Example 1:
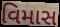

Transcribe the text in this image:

વિમાસ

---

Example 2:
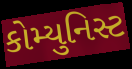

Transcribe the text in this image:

કોમ્યુનિસ્ટ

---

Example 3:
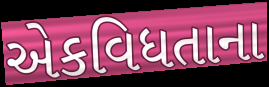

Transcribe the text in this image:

એકવિધતાના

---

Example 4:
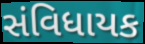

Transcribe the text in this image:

સંવિધાયક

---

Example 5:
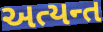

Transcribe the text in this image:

અત્યન્ત